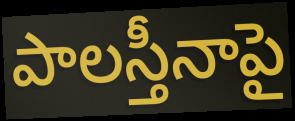
పాలస్తీనాపై